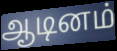
ஆடினம்